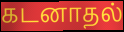
கடனாதல்